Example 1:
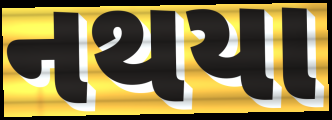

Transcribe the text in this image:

નથયા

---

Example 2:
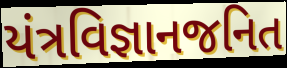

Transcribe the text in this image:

યંત્રવિજ્ઞાનજનિત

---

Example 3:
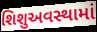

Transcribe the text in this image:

શિશુઅવસ્થામાં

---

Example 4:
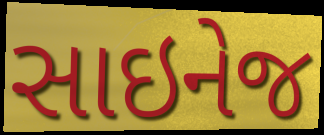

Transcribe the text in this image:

સાઇનેજ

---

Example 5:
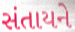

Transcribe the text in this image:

સંતાયને